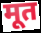
मूत